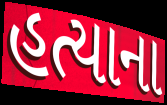
હત્યાના